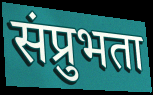
संप्रुभता